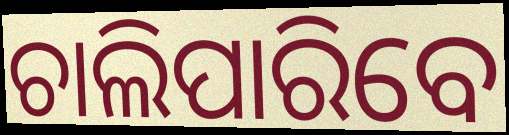
ଚାଲିପାରିବେ